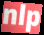
nlp